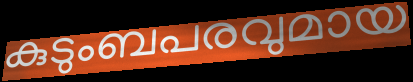
കുടുംബപരവുമായ